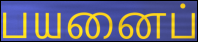
பயனைப்